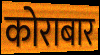
कोराबार